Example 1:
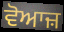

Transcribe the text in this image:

ਵੋਆਜ਼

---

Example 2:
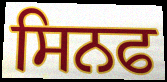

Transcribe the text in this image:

ਸਿਨਫ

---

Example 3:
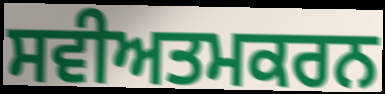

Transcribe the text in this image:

ਸਵੀਅਤਮਕਰਨ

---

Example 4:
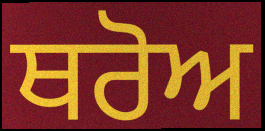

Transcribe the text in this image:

ਥਰੋਅ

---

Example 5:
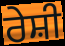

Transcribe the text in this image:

ਰੇਸ਼ੀ